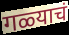
गळ्याचं